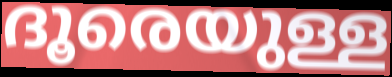
ദൂരെയുള്ള